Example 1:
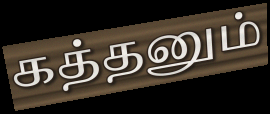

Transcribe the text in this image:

கத்தனும்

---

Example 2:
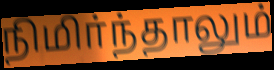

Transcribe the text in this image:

நிமிர்ந்தாலும்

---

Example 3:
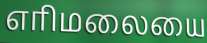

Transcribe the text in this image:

எரிமலையை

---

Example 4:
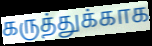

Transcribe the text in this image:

கருத்துக்காக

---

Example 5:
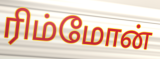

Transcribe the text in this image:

ரிம்மோன்